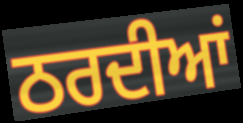
ਠਰਦੀਆਂ